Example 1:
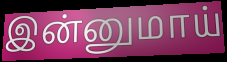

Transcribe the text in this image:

இன்னுமாய்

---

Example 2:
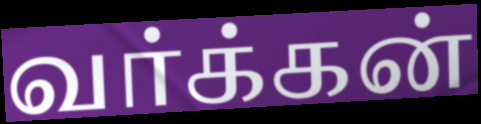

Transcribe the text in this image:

வர்க்கன்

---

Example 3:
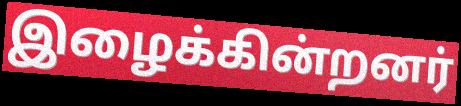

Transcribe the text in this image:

இழைக்கின்றனர்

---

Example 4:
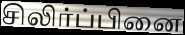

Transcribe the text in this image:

சிலிர்ப்பினை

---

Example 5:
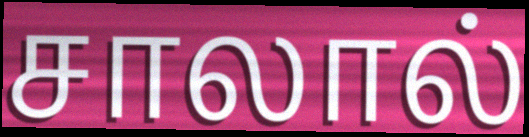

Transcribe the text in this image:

சாலால்